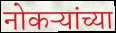
नोकऱ्यांच्या